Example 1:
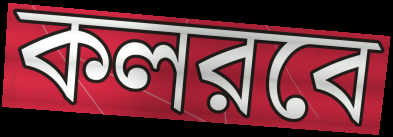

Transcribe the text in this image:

কলরবে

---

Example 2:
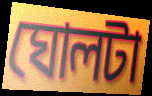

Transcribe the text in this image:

ঘোলটা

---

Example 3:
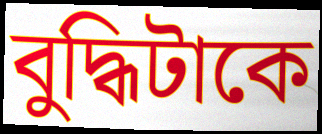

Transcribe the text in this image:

বুদ্ধিটাকে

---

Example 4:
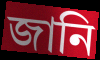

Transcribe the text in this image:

জানি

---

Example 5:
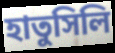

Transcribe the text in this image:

হাতুসিলি